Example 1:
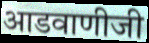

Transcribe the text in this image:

आडवाणीजी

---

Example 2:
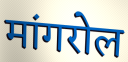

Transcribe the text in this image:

मांगरोल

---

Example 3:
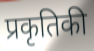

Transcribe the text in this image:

प्रकृतिकी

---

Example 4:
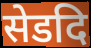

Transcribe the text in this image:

सेडदि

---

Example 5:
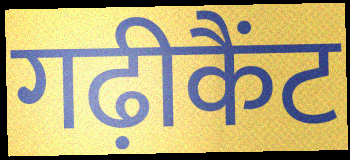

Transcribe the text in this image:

गढ़ीकैंट